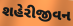
શહેરીજીવન